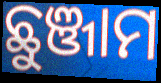
ଛୁଞ୍ଜାମ